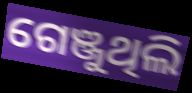
ଗେଞ୍ଜୁଥିଲି